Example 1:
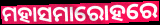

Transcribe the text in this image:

ମହାସମାରୋହରେ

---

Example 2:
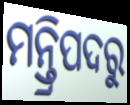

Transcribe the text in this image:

ମନ୍ତ୍ରିପଦରୁ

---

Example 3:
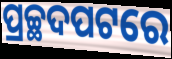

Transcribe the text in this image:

ପ୍ରଚ୍ଛଦପଟରେ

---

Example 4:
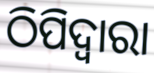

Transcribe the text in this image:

ଠିପିଦ୍ଵାରା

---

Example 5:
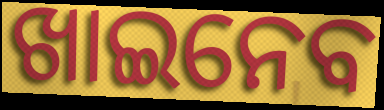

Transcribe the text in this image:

ଖାଇନେବ